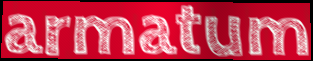
armatum